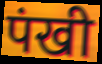
पंखी